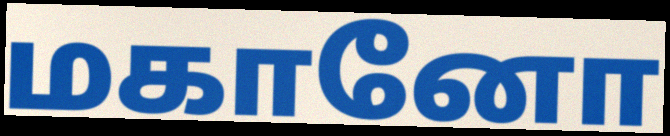
மகானோ